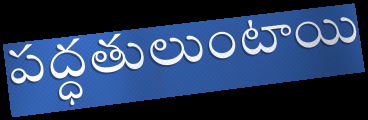
పద్ధతులుంటాయి